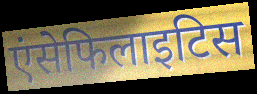
एंसेफिलाइटिस